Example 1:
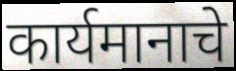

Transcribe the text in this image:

कार्यमानाचे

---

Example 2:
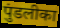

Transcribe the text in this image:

पुंडलीका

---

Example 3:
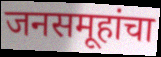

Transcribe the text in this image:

जनसमूहांचा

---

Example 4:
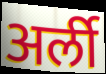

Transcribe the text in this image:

अर्ली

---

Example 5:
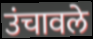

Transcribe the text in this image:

उंचावले